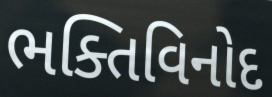
ભક્તિવિનોદ